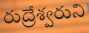
రుద్రేశ్వరుని